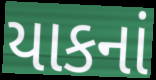
યાકનાં